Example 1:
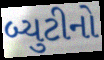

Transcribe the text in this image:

બ્યુટીનો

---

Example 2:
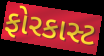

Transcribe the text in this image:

ફોરકાસ્ટ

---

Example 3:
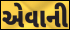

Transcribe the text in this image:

એવાની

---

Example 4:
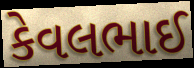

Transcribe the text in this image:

કેવલભાઈ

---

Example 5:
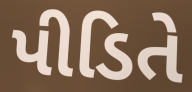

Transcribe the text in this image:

પીડિતે